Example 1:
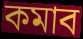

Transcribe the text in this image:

কমাব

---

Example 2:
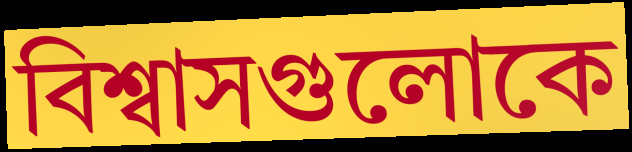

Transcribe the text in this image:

বিশ্বাসগুলোকে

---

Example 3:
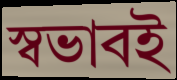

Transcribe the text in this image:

স্বভাবই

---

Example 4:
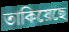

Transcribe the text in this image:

তাকিয়েছে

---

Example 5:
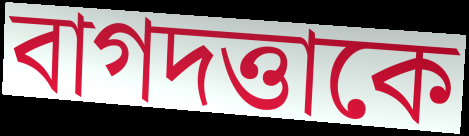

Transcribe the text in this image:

বাগদত্তাকে